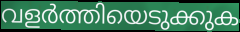
വളർത്തിയെടുക്കുക